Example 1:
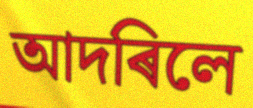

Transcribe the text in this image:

আদৰিলে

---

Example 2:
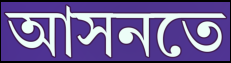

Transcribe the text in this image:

আসনতে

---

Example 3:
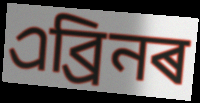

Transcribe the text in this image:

এব্ৰিনৰ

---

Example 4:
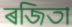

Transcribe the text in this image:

ৰজিতা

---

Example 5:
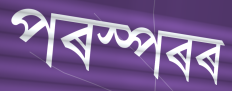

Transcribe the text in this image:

পৰস্পৰৰ